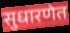
सुधारणेत